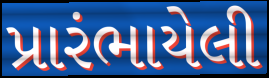
પ્રારંભાયેલી